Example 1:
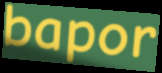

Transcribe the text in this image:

bapor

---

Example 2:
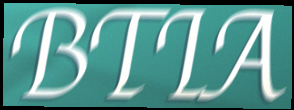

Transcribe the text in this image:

BTIA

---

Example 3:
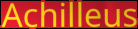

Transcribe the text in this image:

Achilleus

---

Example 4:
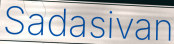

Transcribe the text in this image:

Sadasivan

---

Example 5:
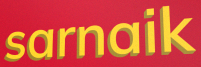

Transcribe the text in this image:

sarnaik